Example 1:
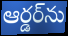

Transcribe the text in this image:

ఆర్డర్‌ను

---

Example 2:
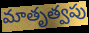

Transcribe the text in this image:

మాతృత్వపు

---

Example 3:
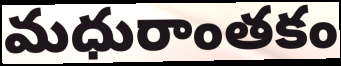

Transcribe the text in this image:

మధురాంతకం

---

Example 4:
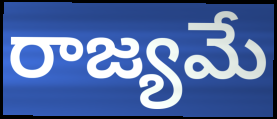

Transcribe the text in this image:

రాజ్యమే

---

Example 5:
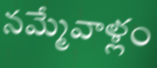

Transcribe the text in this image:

నమ్మేవాళ్లం